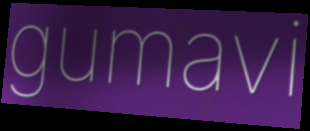
gumavi